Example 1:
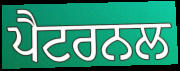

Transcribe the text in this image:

ਪੈਟਰਨਲ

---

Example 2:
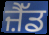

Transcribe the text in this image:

ਜ਼ੈੱਡ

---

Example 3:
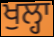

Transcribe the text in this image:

ਖੁਲ੍ਹਾ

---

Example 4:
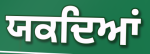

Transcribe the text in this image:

ਯਕਦਿਆਂ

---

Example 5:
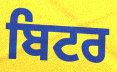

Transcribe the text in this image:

ਬਿਟਰ